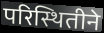
परिस्थितीने